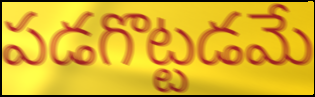
పడగొట్టడమే